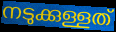
നടുക്കുള്ളത്